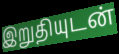
இறுதியுடன்